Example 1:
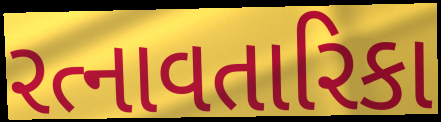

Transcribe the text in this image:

રત્નાવતારિકા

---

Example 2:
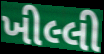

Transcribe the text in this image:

ખીલ્લી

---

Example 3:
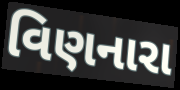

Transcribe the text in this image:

વિણનારા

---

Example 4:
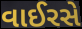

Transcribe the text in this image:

વાઈરસે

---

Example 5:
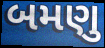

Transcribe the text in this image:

બમણુ